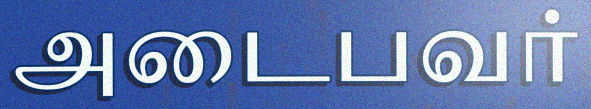
அடைபவர்